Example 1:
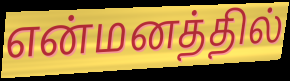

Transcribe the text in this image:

என்மனத்தில்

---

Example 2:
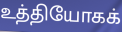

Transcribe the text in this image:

உத்தியோகக்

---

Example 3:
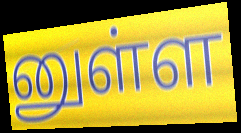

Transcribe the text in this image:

னுள்ள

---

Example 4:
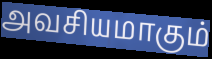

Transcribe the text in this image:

அவசியமாகும்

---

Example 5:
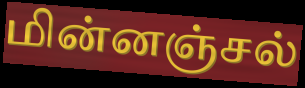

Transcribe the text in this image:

மின்னஞ்சல்